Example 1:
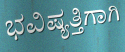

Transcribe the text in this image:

ಭವಿಷ್ಯತ್ತಿಗಾಗಿ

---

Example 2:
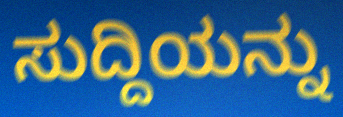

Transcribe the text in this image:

ಸುದ್ದಿಯನ್ನು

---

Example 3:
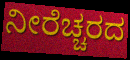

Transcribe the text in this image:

ನೀರೆಚ್ಚರದ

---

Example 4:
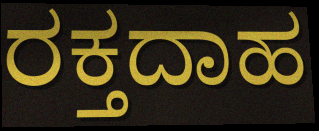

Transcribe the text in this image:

ರಕ್ತದಾಹ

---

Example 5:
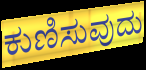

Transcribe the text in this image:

ಕುಣಿಸುವುದು